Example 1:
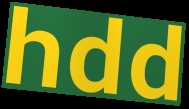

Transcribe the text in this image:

hdd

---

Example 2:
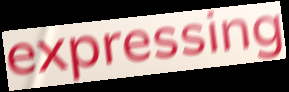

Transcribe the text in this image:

expressing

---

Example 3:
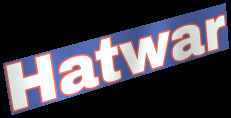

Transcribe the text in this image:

Hatwar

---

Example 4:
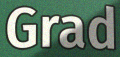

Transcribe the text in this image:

Grad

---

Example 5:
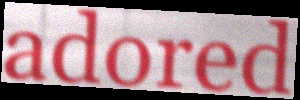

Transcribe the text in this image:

adored